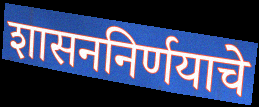
शासननिर्णयाचे